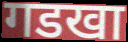
गडखा